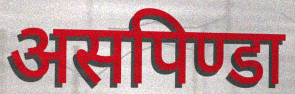
असपिण्डा